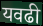
यवढी